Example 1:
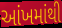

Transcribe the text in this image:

આંખમાંથી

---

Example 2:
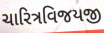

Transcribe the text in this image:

ચારિત્રવિજયજી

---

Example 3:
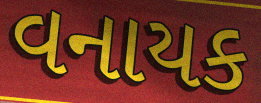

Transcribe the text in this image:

વનાયક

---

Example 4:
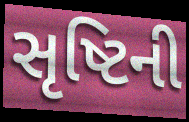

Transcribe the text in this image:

સૃષ્ટિની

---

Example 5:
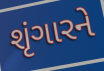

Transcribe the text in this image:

શૃંગારને